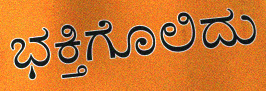
ಭಕ್ತಿಗೊಲಿದು